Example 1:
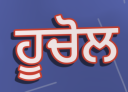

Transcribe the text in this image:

ਹੂਚੋਲ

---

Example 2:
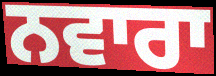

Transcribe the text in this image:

ਨਵਾਰਾ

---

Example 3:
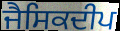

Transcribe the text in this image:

ਜੈਸਿਕਦੀਪ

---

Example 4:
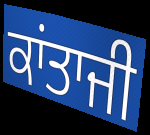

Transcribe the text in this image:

ਕਾਂਤਾਜੀ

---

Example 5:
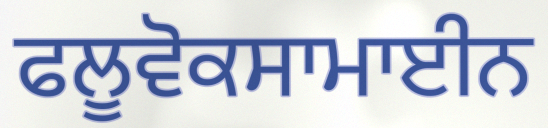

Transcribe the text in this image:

ਫਲੂਵੋਕਸਾਮਾਈਨ